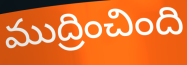
ముద్రించింది